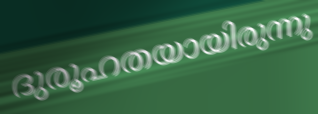
ദുരൂഹതയായിരുന്നു